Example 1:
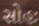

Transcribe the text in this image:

સોહઃ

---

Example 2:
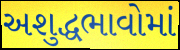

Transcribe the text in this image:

અશુદ્ધભાવોમાં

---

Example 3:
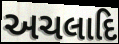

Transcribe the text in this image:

અચલાદિ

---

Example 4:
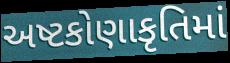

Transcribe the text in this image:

અષ્ટકોણાકૃતિમાં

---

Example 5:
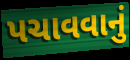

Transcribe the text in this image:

પચાવવાનું